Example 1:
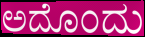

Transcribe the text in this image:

ಅದೊಂದು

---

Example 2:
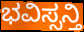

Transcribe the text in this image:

ಭವಿಸ್ಸನ್ತಿ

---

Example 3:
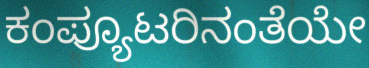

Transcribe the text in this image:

ಕಂಪ್ಯೂಟರಿನಂತೆಯೇ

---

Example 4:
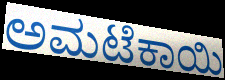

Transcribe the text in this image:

ಅಮಟೆಕಾಯಿ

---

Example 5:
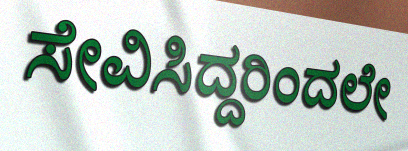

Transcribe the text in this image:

ಸೇವಿಸಿದ್ದರಿಂದಲೇ